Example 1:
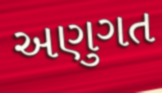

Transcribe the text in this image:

અણુગત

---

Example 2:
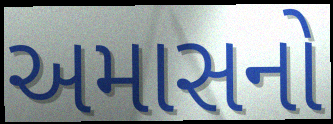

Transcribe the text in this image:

અમાસનો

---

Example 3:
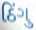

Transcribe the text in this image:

ઠિંગુ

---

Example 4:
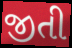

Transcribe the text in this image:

જીતી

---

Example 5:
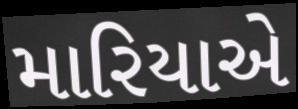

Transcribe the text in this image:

મારિયાએ